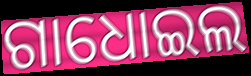
ଗାଧୋଇଲ